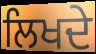
ਲਿਖਦੇ